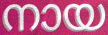
നായ